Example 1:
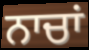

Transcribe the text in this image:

ਨਾਚਾਂ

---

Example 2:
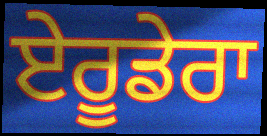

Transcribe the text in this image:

ਏਰੂਡੇਰਾ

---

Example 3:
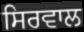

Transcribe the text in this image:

ਸਿਰਵਾਲ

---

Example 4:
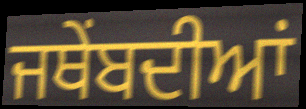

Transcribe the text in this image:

ਜਥੇਂਬਦੀਆਂ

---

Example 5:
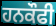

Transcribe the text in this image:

ਹਨਕੌਫੀ